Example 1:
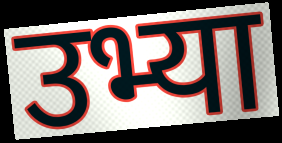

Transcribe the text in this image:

उभ्या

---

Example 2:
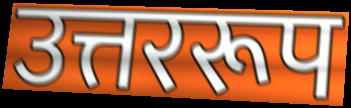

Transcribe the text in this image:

उत्तररूप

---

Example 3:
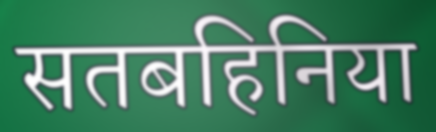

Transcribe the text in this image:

सतबहिनिया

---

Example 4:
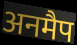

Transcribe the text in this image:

अनमैप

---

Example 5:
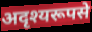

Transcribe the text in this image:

अदृश्यरूपसे